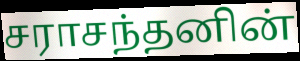
சராசந்தனின்